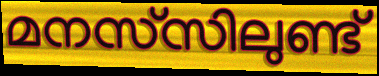
മനസ്‌സിലുണ്ട്